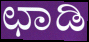
ಛಾಡಿ